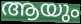
ആയും